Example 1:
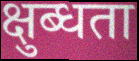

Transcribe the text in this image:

क्षुब्धता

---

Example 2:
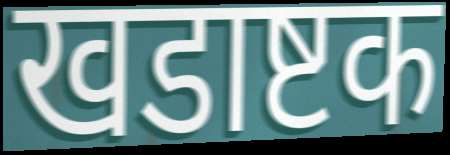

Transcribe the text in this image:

खडाष्टक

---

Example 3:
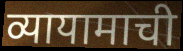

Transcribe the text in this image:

व्यायामाची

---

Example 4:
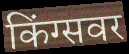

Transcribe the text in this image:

किंग्सवर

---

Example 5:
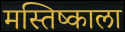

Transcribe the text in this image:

मस्तिष्काला